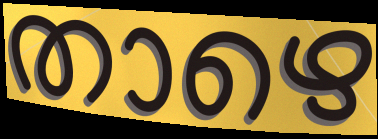
താഴെ